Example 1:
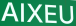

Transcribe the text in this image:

AIXEU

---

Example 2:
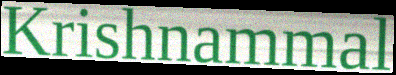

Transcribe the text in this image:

Krishnammal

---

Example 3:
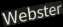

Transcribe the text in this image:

Webster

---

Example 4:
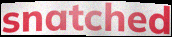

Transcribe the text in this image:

snatched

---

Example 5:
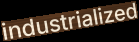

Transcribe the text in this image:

industrialized